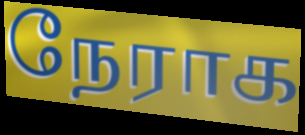
நேராக